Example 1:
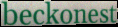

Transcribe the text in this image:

beckonest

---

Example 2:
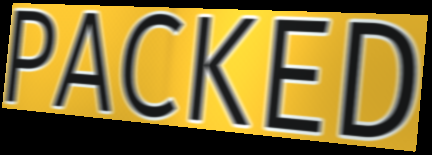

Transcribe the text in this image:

PACKED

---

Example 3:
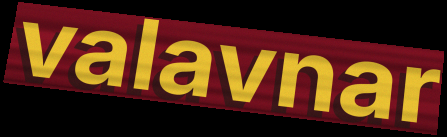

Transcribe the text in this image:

valavnar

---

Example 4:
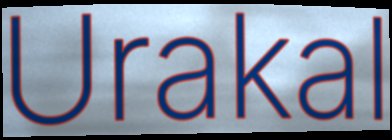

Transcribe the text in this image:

Urakal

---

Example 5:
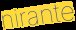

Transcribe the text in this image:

nirante